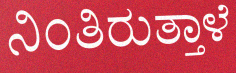
ನಿಂತಿರುತ್ತಾಳೆ